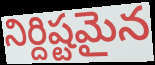
నిర్దిష్టమైన